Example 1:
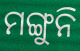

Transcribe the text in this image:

ମଙ୍ଗୁନି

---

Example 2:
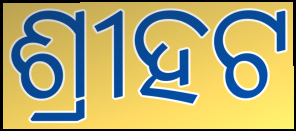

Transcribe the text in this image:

ଶ୍ରୀହଟ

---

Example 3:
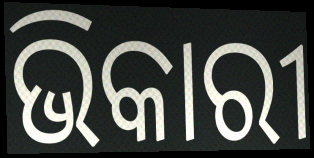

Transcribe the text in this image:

ଭିକାରୀ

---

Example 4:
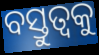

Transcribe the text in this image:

ବସ୍ତୁତ୍ଵକୁ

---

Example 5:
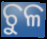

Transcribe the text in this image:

ଚୁଳ